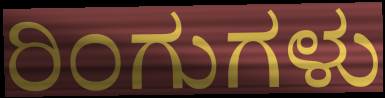
ರಿಂಗುಗಳು